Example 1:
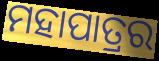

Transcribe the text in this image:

ମହାପାତ୍ରର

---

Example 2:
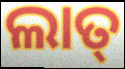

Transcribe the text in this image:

ଲାତ୍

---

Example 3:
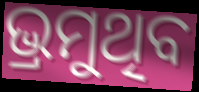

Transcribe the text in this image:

ଭ୍ରମୁଥିବ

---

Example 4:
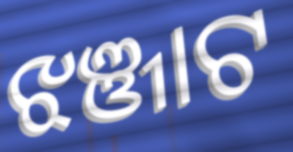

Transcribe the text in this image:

ଝଞ୍ଜାଟ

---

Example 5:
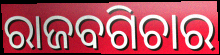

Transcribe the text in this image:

ରାଜବଗିଚାର